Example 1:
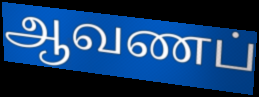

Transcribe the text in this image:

ஆவணப்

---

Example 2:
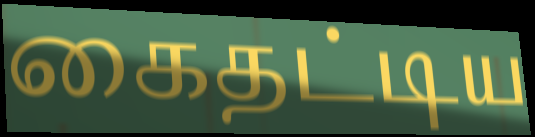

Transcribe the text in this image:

கைதட்டிய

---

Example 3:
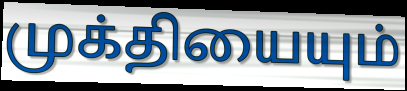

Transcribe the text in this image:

முக்தியையும்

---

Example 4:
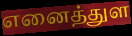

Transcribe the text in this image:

எனைத்துள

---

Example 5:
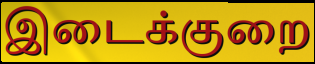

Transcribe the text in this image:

இடைக்குறை